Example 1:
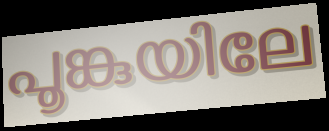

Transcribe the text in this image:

പൂങ്കുയിലേ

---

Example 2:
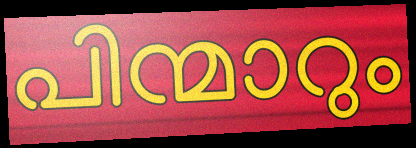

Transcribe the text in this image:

പിന്മാറും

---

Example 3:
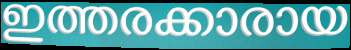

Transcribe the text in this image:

ഇത്തരക്കാരായ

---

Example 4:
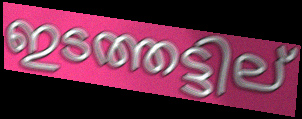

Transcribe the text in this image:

ഇടത്തട്ടില്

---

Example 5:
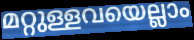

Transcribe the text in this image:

മറ്റുള്ളവയെല്ലാം